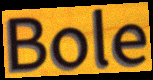
Bole